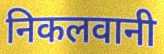
निकलवानी